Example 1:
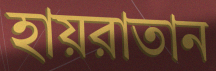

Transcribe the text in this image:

হায়রাতান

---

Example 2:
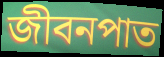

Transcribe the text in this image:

জীবনপাত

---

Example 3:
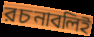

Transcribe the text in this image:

রচনাবলিই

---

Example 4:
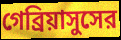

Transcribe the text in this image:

গেব্রিয়াসুসের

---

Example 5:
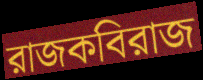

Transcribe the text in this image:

রাজকবিরাজ